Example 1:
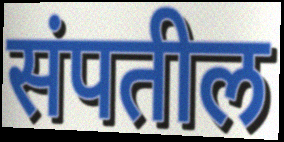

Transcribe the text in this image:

संपतील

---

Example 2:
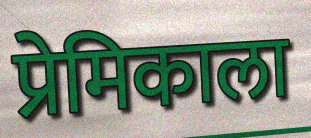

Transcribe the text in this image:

प्रेमिकाला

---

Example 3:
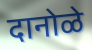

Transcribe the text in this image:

दानोळे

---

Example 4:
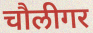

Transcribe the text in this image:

चौलीगर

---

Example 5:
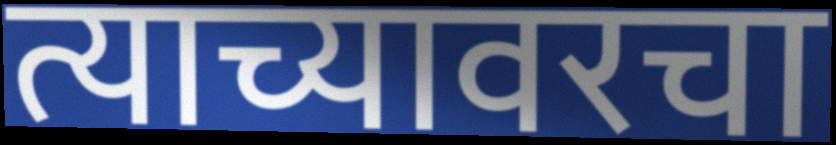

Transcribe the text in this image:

त्याच्यावरचा